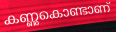
കണ്ണുകൊണ്ടാണ്